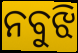
ନବୁଝି